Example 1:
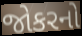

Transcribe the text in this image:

જોકરનો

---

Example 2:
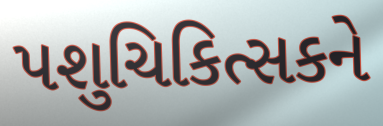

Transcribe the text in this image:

પશુચિકિત્સકને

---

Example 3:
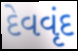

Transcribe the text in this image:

દેવવૃંદ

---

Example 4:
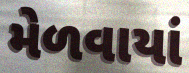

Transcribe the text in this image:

મેળવાયાં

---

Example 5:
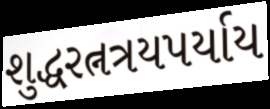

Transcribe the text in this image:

શુદ્ધરત્નત્રયપર્યાય